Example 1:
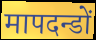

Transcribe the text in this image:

मापदन्डों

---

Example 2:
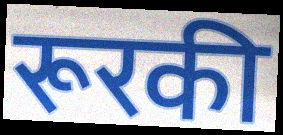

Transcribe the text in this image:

रूरकी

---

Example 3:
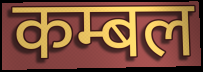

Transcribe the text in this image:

कम्बल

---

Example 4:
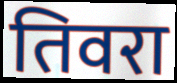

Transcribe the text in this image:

तिवरा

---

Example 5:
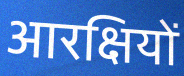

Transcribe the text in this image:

आरक्षियों